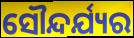
ସୌନ୍ଦର୍ଯ୍ୟର